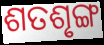
ଶତଶୃଙ୍ଗ